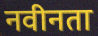
नवीनता